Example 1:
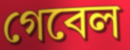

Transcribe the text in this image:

গেবেল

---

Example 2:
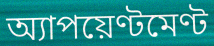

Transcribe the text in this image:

অ্যাপয়েণ্টমেণ্ট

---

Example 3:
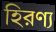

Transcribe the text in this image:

হিরণ্য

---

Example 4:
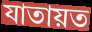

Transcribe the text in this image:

যাতায়ত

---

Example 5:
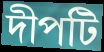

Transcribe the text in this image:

দীপটি